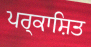
ਪਰ੍ਕਾਸ਼ਿਤ